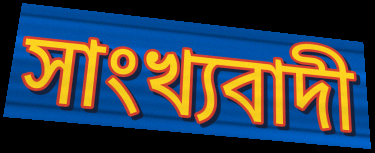
সাংখ্যবাদী